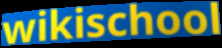
wikischool